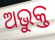
ଅଭୁକ୍ତ